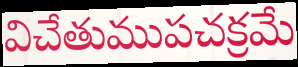
విచేతుముపచక్రమే